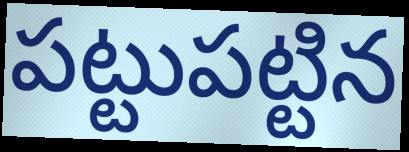
పట్టుపట్టిన